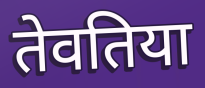
तेवतिया